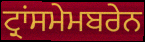
ਟ੍ਰਾਂਸਮੇਮਬਰੇਨ